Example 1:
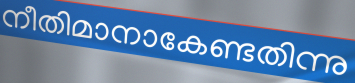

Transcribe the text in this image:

നീതിമാനാകേണ്ടതിന്നു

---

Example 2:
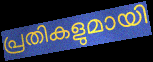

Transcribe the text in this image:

പ്രതികളുമായി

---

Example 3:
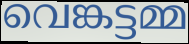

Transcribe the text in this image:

വെങ്കട്ടമ്മ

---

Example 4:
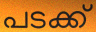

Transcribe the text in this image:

പടക്ക്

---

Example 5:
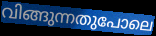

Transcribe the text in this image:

വിങ്ങുന്നതുപോലെ